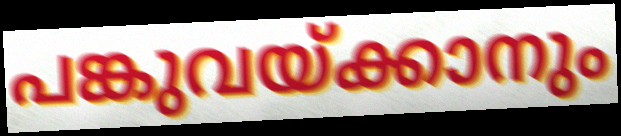
പങ്കുവയ്ക്കാനും